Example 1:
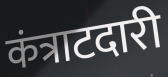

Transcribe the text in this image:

कंत्राटदारी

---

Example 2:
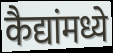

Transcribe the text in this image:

कैद्यांमध्ये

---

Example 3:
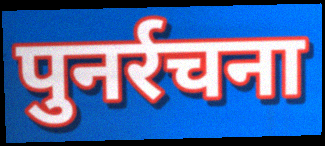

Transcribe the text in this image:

पुनर्रचना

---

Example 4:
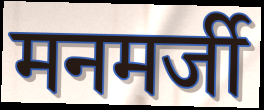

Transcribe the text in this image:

मनमर्जी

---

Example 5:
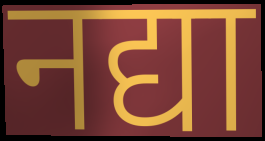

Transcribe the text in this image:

नद्या